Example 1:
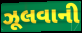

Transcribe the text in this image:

ઝૂલવાની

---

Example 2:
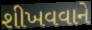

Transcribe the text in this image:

શીખવવાને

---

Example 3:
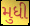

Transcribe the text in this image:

મુધી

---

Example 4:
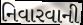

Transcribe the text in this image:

નિવારવાની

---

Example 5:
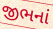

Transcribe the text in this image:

જીભનાં